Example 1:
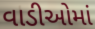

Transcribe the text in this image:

વાડીઓમાં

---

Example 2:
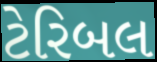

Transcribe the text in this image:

ટેરિબલ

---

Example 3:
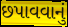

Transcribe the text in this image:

છપાવવાનું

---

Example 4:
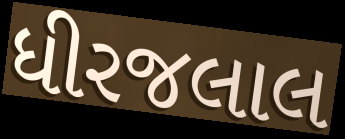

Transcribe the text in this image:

ધીરજલાલ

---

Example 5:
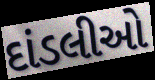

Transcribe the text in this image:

દાંડલીઓ